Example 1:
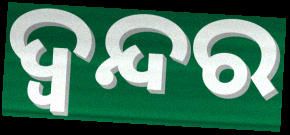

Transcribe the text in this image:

ଦ୍ବନ୍ଦର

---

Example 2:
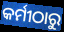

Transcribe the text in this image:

କର୍ମୀଠାରୁ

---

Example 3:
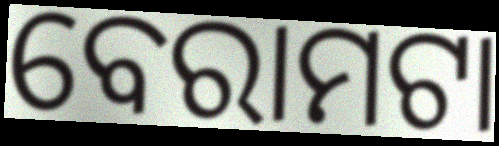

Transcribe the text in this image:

ବେରାମଟା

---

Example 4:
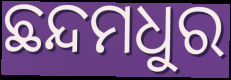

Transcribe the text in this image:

ଛନ୍ଦମଧୁର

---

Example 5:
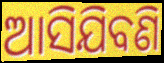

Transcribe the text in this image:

ଆସିଯିବଣି